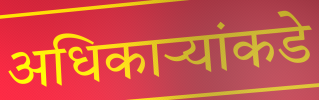
अधिकार्‍यांकडे